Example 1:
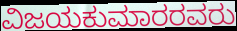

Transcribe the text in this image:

ವಿಜಯಕುಮಾರರವರು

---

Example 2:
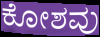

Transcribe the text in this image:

ಕೋಶವು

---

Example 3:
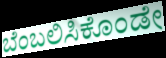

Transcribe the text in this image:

ಬೆಂಬಲಿಸಿಕೊಂಡೇ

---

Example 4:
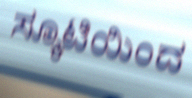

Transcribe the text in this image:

ಸ್ಕೂಟಿಯಿಂದ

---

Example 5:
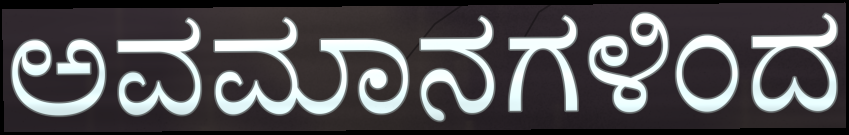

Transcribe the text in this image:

ಅವಮಾನಗಳಿಂದ